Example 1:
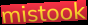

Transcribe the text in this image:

mistook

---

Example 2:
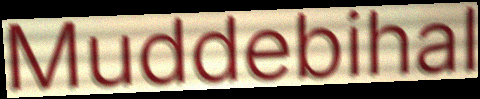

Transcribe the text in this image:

Muddebihal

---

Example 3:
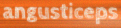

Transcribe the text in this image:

angusticeps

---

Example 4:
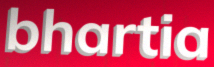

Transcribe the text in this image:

bhartia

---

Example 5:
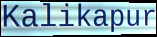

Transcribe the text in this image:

Kalikapur